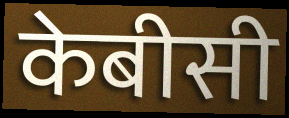
केबीसी